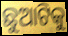
ଛୁଆଟିକୁ